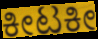
ಕೀಟಕೀ